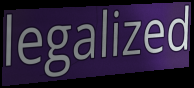
legalized